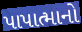
પાપાત્માનો